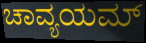
ಚಾವ್ಯಯಮ್